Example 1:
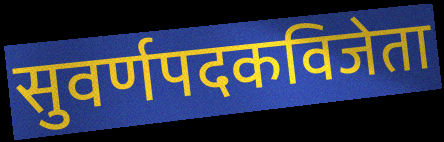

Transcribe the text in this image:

सुवर्णपदकविजेता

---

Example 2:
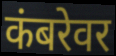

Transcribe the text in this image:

कंबरेवर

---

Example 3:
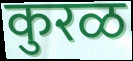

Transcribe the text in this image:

कुरळ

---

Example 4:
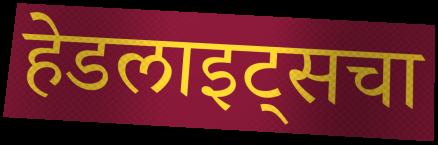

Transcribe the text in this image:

हेडलाइट्सचा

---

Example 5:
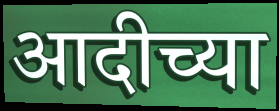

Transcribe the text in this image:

आदीच्या